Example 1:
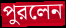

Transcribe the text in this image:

পুরলেন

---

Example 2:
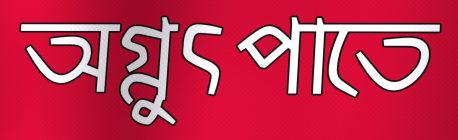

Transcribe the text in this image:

অগ্নুৎপাতে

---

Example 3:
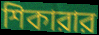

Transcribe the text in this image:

শিকারার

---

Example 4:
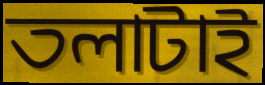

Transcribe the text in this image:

তলাটাই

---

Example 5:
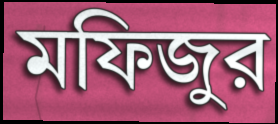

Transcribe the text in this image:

মফিজুর